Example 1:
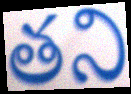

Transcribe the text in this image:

తని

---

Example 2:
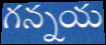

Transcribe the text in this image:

గన్నయ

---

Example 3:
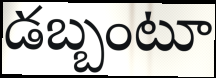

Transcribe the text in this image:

డబ్బంటూ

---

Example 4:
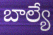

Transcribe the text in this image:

బాల్యే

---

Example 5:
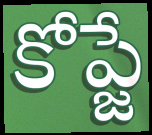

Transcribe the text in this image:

కోప్జే